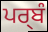
ਪਰ੍ਬੰ